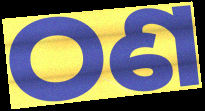
ଠଣ